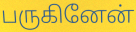
பருகினேன்